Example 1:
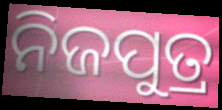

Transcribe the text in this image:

ନିଜପୁତ୍ର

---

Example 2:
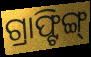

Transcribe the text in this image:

ଗ୍ରାଫ୍ଟିଙ୍ଗ୍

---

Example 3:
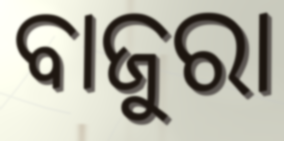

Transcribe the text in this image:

ବାଜୁରା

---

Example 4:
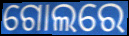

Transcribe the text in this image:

ଗୋଲରେ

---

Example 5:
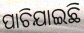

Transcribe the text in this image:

ପାଚିଯାଇଛି